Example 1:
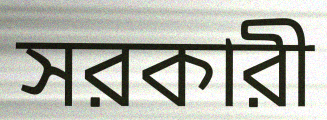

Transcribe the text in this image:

সরকারী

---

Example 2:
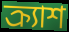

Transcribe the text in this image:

ক্র্যাশ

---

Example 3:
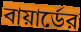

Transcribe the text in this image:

বায়ার্ডের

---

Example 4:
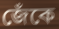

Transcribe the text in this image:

জেঁকে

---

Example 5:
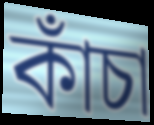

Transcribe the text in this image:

কাঁচা